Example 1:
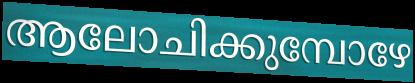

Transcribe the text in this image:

ആലോചിക്കുമ്പോഴേ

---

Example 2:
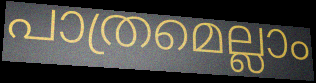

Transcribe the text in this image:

പാത്രമെല്ലാം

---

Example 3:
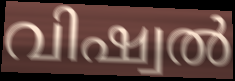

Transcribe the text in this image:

വിഷ്വൽ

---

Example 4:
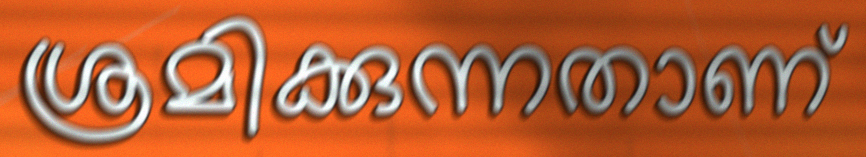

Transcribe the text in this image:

ശ്രമിക്കുന്നതാണ്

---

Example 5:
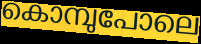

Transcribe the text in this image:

കൊമ്പുപോലെ